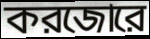
করজোরে